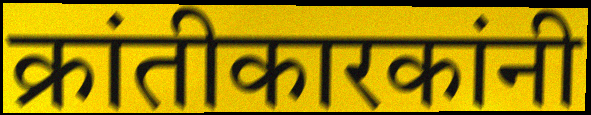
क्रांतीकारकांनी